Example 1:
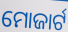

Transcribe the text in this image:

ମୋଜାର୍ଟ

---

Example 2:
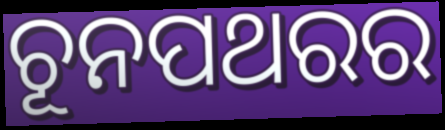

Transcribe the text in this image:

ଚୂନପଥରର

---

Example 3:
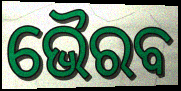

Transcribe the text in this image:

ଭୈରବ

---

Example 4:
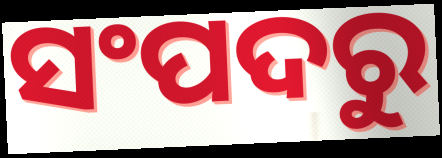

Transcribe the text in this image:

ସଂପଦରୁ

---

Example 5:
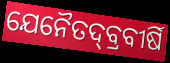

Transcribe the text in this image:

ଯେନୈତଦ୍‌ବ୍ରବୀର୍ଷି